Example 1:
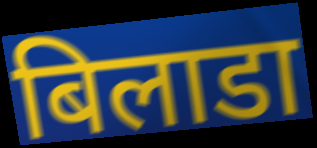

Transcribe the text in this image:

बिलाडा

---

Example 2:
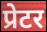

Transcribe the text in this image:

प्रेटर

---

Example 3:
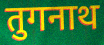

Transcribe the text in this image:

तुगनाथ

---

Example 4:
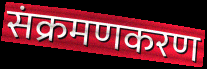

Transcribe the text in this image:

संक्रमणकरण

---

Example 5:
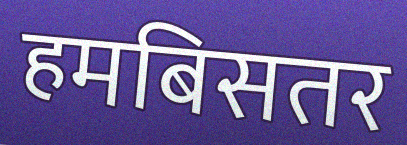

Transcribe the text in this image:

हमबिसतर